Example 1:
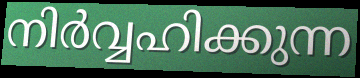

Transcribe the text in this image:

നിർവ്വഹിക്കുന്ന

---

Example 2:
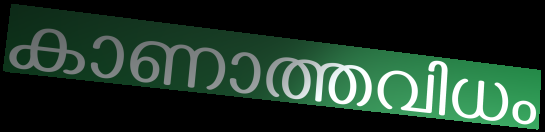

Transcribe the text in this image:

കാണാത്തവിധം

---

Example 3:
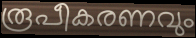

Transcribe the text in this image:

രൂപീകരണവും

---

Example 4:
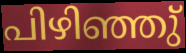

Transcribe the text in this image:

പിഴിഞ്ഞു്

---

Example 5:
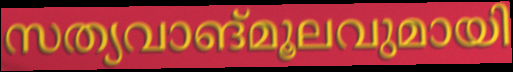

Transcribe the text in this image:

സത്യവാങ്മൂലവുമായി